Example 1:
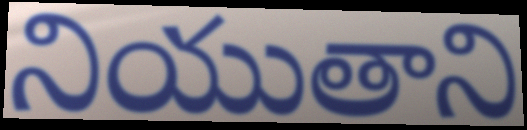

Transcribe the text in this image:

నియుతాని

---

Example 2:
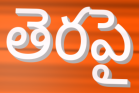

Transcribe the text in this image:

తెరపై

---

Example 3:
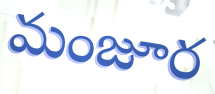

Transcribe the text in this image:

మంజూర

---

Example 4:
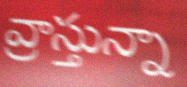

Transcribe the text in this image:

వ్రాస్తున్నా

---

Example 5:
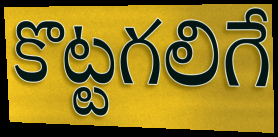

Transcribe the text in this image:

కొట్టగలిగే